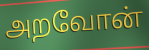
அறவோன்